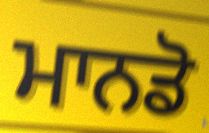
ਮਾਨਡੋ